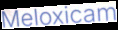
Meloxicam